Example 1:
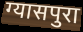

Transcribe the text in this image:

ग्यासपुरा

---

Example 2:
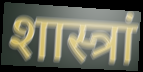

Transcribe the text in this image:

शास्त्रां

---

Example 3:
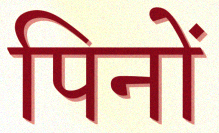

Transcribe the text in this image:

पिनों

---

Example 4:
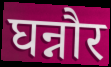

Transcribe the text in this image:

घन्नौर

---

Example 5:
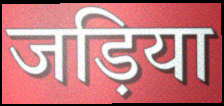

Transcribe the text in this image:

जड़िया